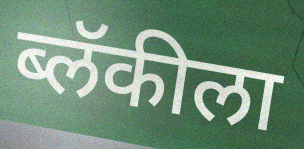
ब्लॅकीला